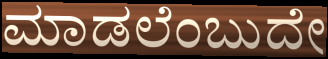
ಮಾಡಲೆಂಬುದೇ